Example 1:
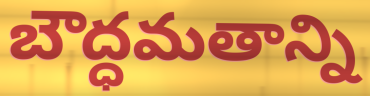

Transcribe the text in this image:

బౌద్ధమతాన్ని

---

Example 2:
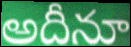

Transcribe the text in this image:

అదీనూ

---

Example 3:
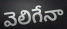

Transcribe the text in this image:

వెలిగేనా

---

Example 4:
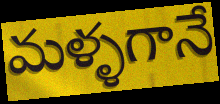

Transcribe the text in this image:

మళ్ళగానే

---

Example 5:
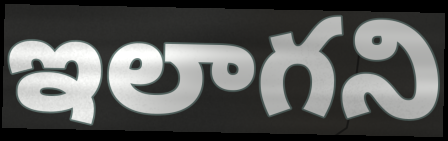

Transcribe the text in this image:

ఇలాగని